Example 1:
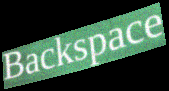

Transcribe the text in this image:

Backspace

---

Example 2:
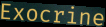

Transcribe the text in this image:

Exocrine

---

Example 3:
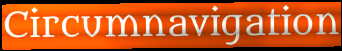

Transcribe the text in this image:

Circumnavigation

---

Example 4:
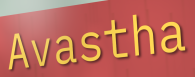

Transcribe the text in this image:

Avastha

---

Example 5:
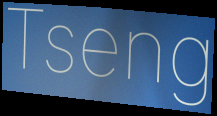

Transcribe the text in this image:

Tseng